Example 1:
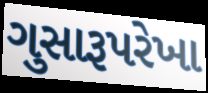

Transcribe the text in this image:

ગુસારૂપરેખા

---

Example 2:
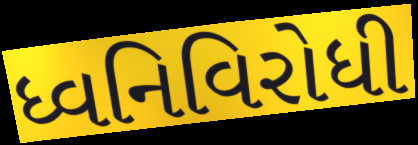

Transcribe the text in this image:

ધ્વનિવિરોધી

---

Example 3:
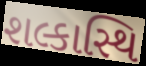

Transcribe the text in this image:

શલ્કાસ્થિ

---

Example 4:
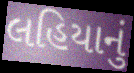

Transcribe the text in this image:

લહિયાનું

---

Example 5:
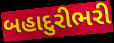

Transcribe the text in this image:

બહાદુરીભરી